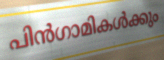
പിൻഗാമികൾക്കും